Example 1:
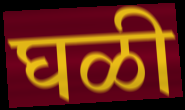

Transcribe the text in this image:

घळी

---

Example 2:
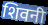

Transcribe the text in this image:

शिवनी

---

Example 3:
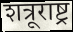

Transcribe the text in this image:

शत्रूराष्ट्र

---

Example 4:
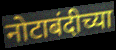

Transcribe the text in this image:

नोटाबंदीच्या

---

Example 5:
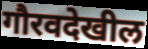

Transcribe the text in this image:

गौरवदेखील